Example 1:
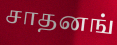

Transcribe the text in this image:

சாதனங்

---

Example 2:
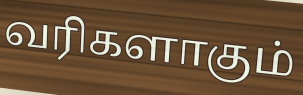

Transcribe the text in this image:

வரிகளாகும்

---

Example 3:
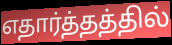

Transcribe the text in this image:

எதார்த்தத்தில்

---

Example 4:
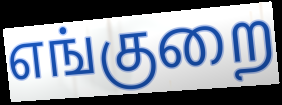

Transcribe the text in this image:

எங்குறை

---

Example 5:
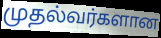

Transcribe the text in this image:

முதல்வர்களான